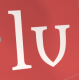
lu